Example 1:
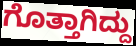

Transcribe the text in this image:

ಗೊತ್ತಾಗಿದ್ದು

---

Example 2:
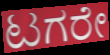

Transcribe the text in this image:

ಟಗರೇ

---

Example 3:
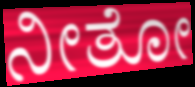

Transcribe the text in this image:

ನೀತೋ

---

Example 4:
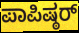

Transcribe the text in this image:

ಪಾಪಿಷ್ಠರ್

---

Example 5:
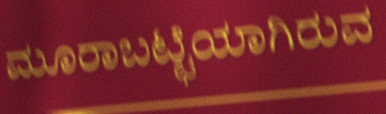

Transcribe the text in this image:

ಮೂರಾಬಟ್ಟೆಯಾಗಿರುವ